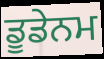
ਡੂਡੇਨਮ